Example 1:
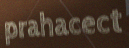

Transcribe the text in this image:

prahacect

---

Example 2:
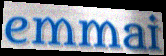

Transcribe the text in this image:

emmai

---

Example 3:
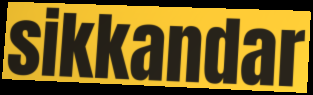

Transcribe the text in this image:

sikkandar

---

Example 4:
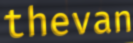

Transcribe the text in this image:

thevan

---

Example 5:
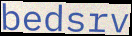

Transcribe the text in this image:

bedsrv